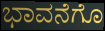
ಭಾವನೆಗೊ